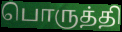
பொருத்தி